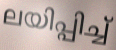
ലയിപ്പിച്ച്